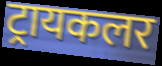
ट्रायकलर